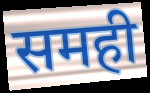
समही